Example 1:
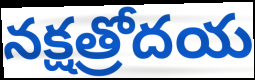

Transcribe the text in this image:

నక్షత్రోదయ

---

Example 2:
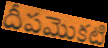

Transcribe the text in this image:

దీపమొకటి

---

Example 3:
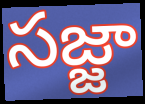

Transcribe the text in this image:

సజ్జా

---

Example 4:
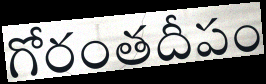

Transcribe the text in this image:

గోరంతదీపం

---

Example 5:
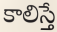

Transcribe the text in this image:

కాలిస్తే